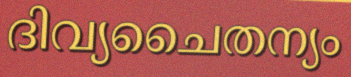
ദിവ്യചൈതന്യം